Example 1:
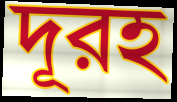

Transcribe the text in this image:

দূরহ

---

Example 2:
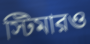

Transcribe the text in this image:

স্টিমারও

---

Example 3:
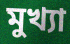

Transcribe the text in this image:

মুখ্যা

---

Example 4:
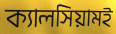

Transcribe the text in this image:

ক্যালসিয়ামই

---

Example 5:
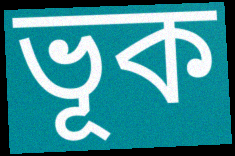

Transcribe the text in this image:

ভূক